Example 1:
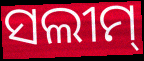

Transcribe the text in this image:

ସଲୀମ୍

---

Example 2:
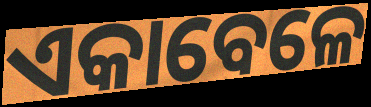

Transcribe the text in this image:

ଏକାବେଳେ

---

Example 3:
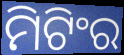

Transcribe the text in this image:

ମିଟିଂର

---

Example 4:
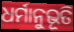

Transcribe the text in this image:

ଧର୍ମାନୁଭୂତି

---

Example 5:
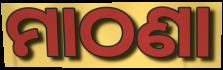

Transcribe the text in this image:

ମାଠଣା